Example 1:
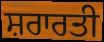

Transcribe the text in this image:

ਸ਼ਰਾਰਤੀ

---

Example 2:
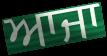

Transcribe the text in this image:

ਆਜਾ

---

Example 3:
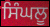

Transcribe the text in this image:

ਸਿੰਘਲੂ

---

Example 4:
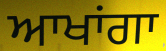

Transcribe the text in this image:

ਆਖਾਂਗਾ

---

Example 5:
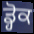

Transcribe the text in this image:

ਡ੍ਹੋਕ